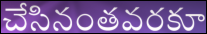
చేసినంతవరకూ